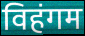
विहंगम